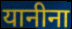
यानीना